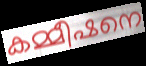
കമ്മീഷനെ